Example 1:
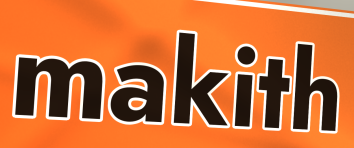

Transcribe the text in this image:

makith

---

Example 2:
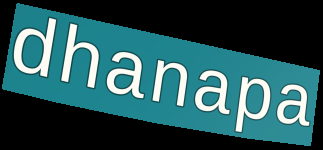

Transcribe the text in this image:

dhanapa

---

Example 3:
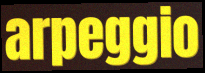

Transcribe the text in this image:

arpeggio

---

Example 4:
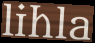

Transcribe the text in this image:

lihla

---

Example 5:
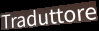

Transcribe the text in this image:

Traduttore